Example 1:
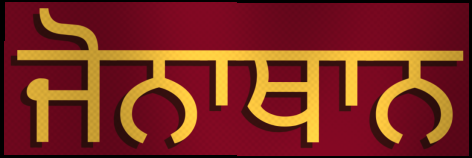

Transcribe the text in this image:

ਜੋਨਾਥਾਨ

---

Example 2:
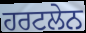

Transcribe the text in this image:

ਹਰਟਲੇਨ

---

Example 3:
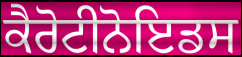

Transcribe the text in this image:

ਕੈਰੋਟੀਨੋਇਡਸ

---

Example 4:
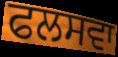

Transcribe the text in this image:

ਫਲਸਵਾ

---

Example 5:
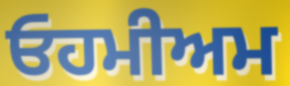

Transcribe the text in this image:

ਓਹਮੀਅਮ